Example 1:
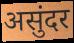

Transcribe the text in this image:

असुंदर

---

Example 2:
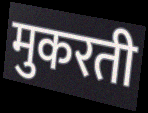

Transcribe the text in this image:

मुकरती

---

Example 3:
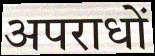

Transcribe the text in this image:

अपराधों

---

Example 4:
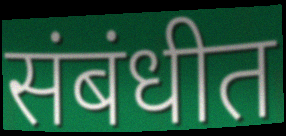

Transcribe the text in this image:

संबंधीत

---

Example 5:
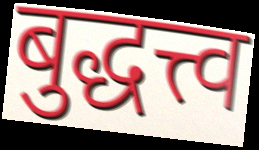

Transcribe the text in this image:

बुद्धत्त्व